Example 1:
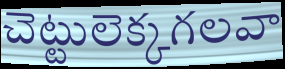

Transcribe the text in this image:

చెట్టులెక్కగలవా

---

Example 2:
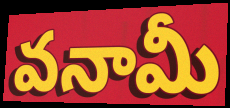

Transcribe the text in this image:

వనామీ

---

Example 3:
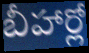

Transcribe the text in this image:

బీహార్లో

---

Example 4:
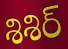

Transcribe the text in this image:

శిశిర్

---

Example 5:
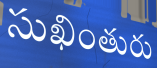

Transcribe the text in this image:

సుఖింతురు